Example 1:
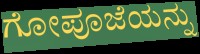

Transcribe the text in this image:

ಗೋಪೂಜೆಯನ್ನು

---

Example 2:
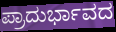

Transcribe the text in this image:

ಪ್ರಾದುರ್ಭಾವದ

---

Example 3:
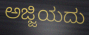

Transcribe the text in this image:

ಅಜ್ಜಿಯದು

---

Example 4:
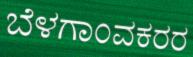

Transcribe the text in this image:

ಬೆಳಗಾಂವಕರರ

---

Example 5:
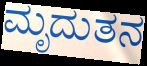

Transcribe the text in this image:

ಮೃದುತನ